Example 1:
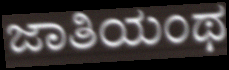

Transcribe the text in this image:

ಜಾತಿಯಂಥ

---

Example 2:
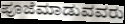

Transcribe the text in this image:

ಪೂಜೆಮಾಡುವವರು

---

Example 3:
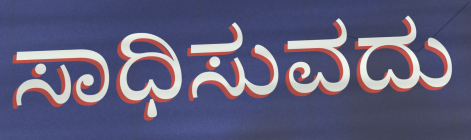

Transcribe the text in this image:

ಸಾಧಿಸುವದು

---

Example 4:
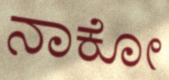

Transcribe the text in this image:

ನಾಕೋ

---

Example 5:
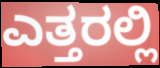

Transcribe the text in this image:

ಎತ್ತರಲ್ಲಿ